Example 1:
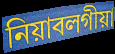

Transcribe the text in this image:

নিয়াবলগীয়া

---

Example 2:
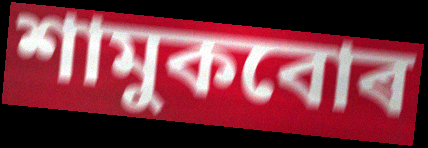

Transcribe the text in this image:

শামুকবোৰ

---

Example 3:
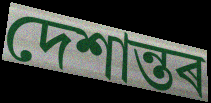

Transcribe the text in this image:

দেশান্তৰ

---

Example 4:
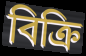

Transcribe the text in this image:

বিক্ৰি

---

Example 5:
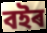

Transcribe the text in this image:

বইৰ